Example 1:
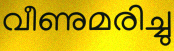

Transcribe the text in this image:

വീണുമരിച്ചു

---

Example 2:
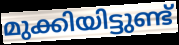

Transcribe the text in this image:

മുക്കിയിട്ടുണ്ട്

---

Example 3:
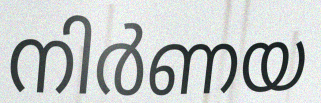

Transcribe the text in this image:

നിർണയ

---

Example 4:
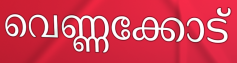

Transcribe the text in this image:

വെണ്ണക്കോട്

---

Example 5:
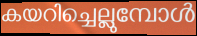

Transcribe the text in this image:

കയറിച്ചെല്ലുമ്പോൾ